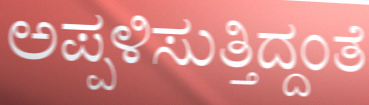
ಅಪ್ಪಳಿಸುತ್ತಿದ್ದಂತೆ